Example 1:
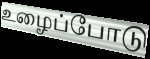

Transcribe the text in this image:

உழைப்போடு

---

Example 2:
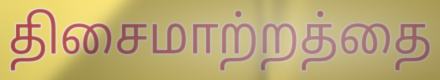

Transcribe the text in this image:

திசைமாற்றத்தை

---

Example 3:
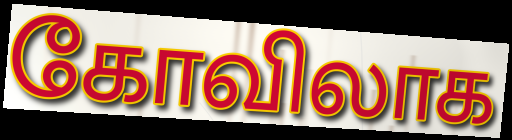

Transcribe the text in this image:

கோவிலாக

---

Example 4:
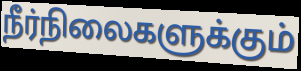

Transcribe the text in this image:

நீர்நிலைகளுக்கும்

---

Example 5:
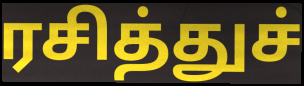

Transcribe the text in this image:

ரசித்துச்